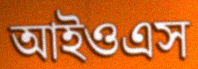
আইওএস